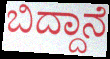
ಬಿದ್ದಾನೆ